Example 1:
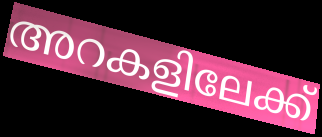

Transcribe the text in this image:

അറകളിലേക്ക്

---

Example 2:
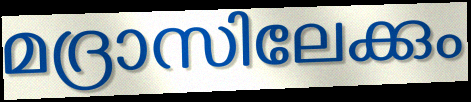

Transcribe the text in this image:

മദ്രാസിലേക്കും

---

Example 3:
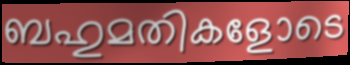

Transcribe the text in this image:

ബഹുമതികളോടെ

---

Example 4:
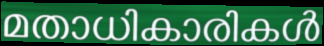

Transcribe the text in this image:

മതാധികാരികൾ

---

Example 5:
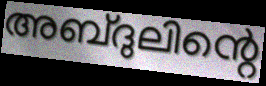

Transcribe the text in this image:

അബ്ദുലിന്റെ